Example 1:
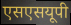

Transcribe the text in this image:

एसएसयूपी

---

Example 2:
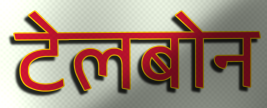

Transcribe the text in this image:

टेलबोन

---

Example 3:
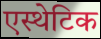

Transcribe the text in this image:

एस्थेटिक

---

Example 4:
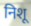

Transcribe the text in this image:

निशू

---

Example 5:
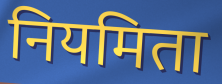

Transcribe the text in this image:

नियमिता